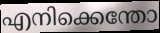
എനിക്കെന്തോ